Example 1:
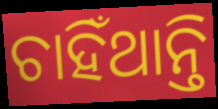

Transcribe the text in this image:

ଚାହିଁଥାନ୍ତି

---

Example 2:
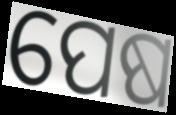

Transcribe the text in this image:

ପେଷ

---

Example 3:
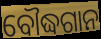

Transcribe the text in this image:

ବୌଦ୍ଧଗାନ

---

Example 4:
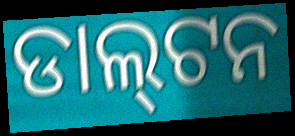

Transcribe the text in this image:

ଡାଲ୍‌ଟନ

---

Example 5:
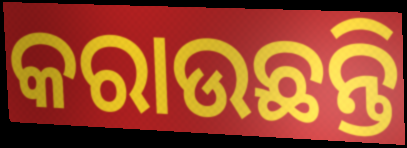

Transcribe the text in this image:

କରାଉଛନ୍ତି